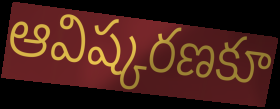
ఆవిష్కరణకూ